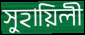
সুহায়িলী